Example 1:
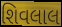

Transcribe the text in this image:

શિવલાલ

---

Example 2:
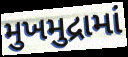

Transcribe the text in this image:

મુખમુદ્રામાં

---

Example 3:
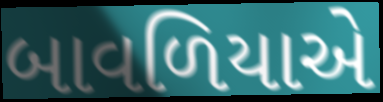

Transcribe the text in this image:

બાવળિયાએ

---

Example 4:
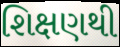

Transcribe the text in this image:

શિક્ષણથી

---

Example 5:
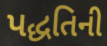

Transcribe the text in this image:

પદ્ધતિની